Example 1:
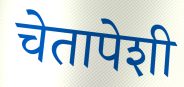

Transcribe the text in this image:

चेतापेशी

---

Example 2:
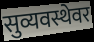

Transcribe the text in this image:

सुव्यवस्थेवर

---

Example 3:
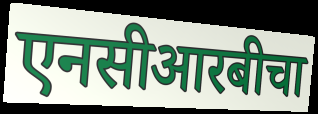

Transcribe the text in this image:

एनसीआरबीचा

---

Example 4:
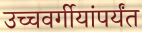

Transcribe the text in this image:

उच्चवर्गीयांपर्यंत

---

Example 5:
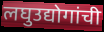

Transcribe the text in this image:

लघुउद्योगांची